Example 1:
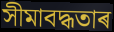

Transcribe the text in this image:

সীমাবদ্ধতাৰ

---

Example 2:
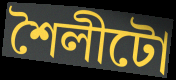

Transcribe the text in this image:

শৈলীটো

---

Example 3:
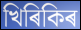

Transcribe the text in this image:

খিৰিকিৰ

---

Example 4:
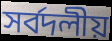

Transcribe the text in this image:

সৰ্বদলীয়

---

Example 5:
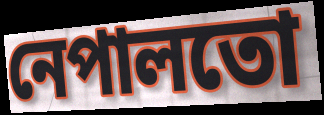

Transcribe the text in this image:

নেপালতো